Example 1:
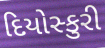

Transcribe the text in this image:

દિયોસ્કુરી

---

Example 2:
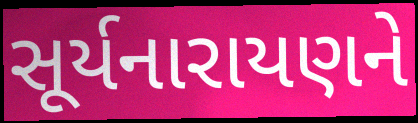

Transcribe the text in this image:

સૂર્યનારાયણને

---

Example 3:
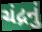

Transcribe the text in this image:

ચંદ્રનું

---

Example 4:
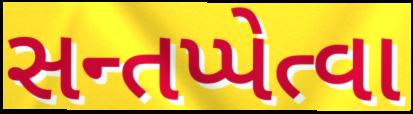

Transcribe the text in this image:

સન્તપ્પેત્વા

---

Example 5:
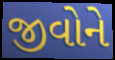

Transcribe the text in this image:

જીવોને